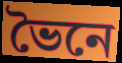
ভৈনে